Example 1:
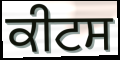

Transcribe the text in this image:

ਕੀਟਸ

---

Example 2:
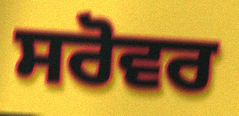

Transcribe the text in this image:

ਸਰੋਵਰ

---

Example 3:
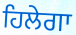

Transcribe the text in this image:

ਹਿਲੇਗਾ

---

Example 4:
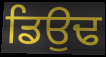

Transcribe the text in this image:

ਡਿਉਢ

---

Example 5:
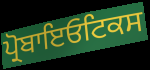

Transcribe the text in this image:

ਪ੍ਰੋਬਾਇਓਟਿਕਸ